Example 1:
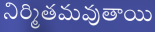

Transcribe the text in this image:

నిర్మితమవుతాయి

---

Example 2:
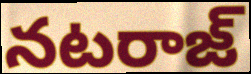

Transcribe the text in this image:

నటరాజ్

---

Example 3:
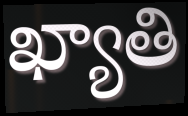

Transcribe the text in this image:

ఖ్యాతి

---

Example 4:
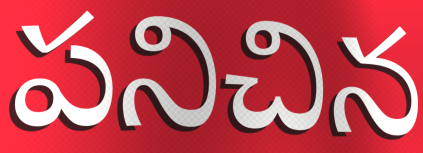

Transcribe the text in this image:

పనిచిన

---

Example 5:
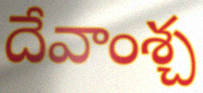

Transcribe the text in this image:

దేవాంశ్చ